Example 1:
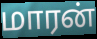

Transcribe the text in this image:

மாரன்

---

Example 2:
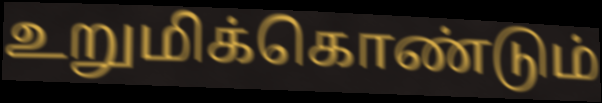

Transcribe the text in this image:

உறுமிக்கொண்டும்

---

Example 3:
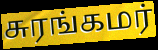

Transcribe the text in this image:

சுரங்கமர்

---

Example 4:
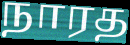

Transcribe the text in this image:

நாரத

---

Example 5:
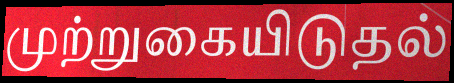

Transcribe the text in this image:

முற்றுகையிடுதல்